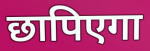
छापिएगा